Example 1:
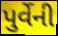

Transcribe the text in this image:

પુર્વેની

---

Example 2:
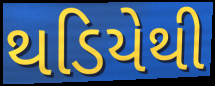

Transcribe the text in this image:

થડિયેથી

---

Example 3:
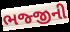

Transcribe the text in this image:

ભજ્જીની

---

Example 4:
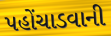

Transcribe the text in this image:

પહોંચાડવાની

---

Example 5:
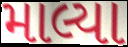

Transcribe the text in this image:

માલ્યા